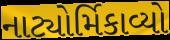
નાટ્યોર્મિકાવ્યો